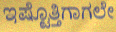
ಇಷ್ಟೊತ್ತಿಗಾಗಲೇ